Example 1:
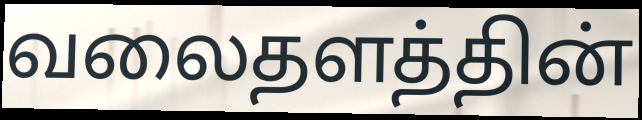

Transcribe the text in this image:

வலைதளத்தின்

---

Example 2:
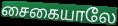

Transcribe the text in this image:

சைகையாலே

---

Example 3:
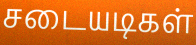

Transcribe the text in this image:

சடையடிகள்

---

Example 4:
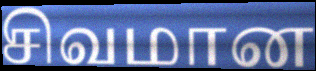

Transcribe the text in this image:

சிவமான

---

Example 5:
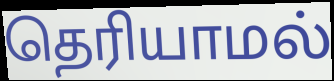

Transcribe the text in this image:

தெரியாமல்